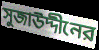
সুজাউদ্দীনের